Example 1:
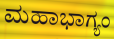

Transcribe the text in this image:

ಮಹಾಭಾಗ್ಯಂ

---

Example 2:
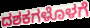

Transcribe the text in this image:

ದಶಕಗಳೊಳಗೆ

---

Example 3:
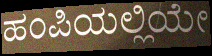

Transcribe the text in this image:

ಹಂಪಿಯಲ್ಲಿಯೇ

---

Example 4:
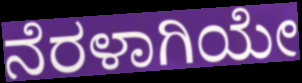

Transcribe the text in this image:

ನೆರಳಾಗಿಯೇ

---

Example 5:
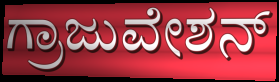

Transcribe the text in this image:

ಗ್ರಾಜುವೇಶನ್